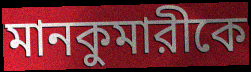
মানকুমারীকে